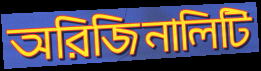
অরিজিনালিটি